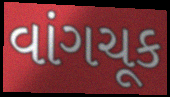
વાંગચૂક